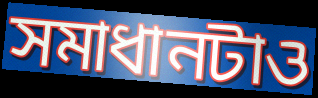
সমাধানটাও